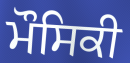
ਮੌਸਿਕੀ